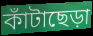
কাঁটাছেড়া